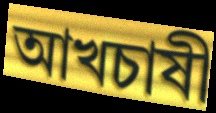
আখচাষী